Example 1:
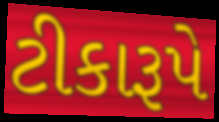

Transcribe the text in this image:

ટીકારૂપે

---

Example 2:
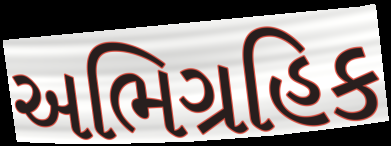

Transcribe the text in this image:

અભિગ્રહિક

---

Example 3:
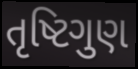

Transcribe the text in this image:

તૃષ્ટિગુણ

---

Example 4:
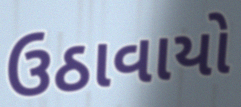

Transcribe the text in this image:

ઉઠાવાયો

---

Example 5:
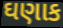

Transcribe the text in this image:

ઘણાક